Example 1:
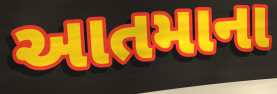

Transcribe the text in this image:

આતમાના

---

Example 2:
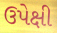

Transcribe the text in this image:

ઉપેક્ષી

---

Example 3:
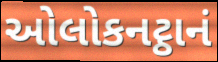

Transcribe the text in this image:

ઓલોકનટ્ઠાનં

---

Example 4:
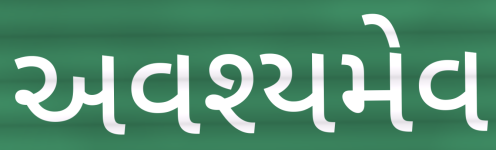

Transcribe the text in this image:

અવશ્યમેવ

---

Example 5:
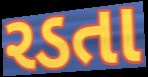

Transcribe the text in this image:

રડતા